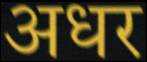
अधर